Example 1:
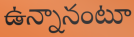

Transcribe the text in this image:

ఉన్నానంటూ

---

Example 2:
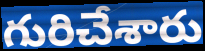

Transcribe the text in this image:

గురిచేశారు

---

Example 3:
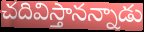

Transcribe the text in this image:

చదివిస్తానన్నాడు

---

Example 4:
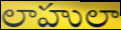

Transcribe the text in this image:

లాహులా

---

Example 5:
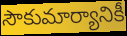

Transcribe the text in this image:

సౌకుమార్యానికీ